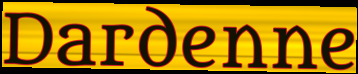
Dardenne